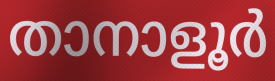
താനാളൂർ